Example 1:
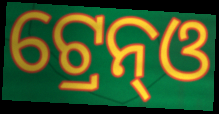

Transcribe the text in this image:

ଟ୍ରେନ୍ଓ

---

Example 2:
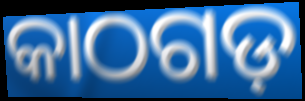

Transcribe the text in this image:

କାଠଗଡ଼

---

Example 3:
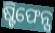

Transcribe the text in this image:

ଷ୍ଟିଫେନ୍ସ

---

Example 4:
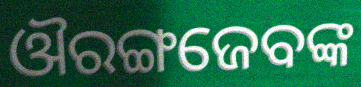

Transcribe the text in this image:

ଔରଙ୍ଗଜେବଙ୍କ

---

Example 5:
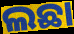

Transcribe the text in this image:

ଲଛା